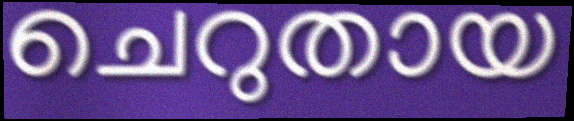
ചെറുതായ